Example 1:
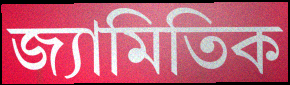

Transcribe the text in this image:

জ্যামিতিক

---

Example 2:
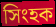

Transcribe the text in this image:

সিংহক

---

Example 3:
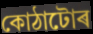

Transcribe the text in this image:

কোঠাটোৰ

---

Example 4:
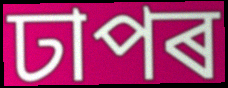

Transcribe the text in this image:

ঢাপৰ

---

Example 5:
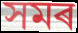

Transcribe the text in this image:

সমৰ